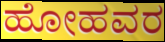
ಹೋಹವರ